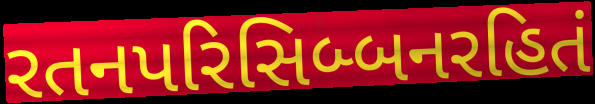
રતનપરિસિબ્બનરહિતં